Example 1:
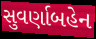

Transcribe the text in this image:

સુવર્ણાબહેન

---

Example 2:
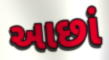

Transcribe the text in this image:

આછાં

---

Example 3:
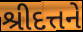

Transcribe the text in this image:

શ્રીદત્તને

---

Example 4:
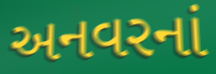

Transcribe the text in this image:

અનવરનાં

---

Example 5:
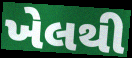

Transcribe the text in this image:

ખેલથી